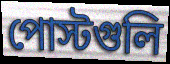
পোস্টগুলি